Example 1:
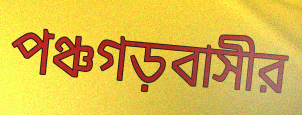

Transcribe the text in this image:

পঞ্চগড়বাসীর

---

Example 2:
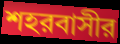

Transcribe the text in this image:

শহরবাসীর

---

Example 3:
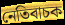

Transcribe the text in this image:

নেতিবাচক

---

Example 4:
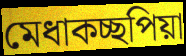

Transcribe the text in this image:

মেধাকচ্ছপিয়া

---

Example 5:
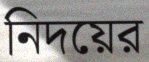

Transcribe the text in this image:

নিদয়ের